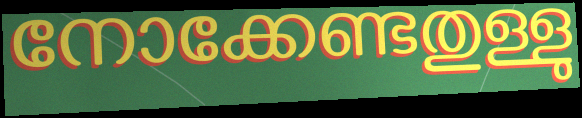
നോക്കേണ്ടതുള്ളു